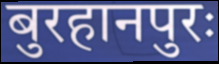
बुरहानपुरः